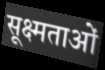
सूक्ष्मताओं